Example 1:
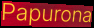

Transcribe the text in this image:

Papurona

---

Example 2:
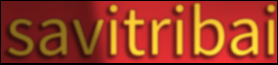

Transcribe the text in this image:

savitribai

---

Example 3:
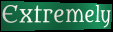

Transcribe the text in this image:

Extremely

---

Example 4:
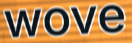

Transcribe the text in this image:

wove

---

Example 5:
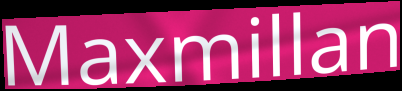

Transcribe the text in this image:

Maxmillan